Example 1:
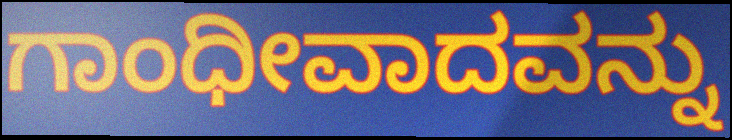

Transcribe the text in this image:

ಗಾಂಧೀವಾದವನ್ನು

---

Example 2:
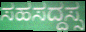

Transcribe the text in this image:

ಸಹಸದ್ದಸ್ಸ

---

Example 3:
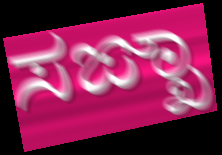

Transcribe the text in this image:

ಸಙ್ಖಾ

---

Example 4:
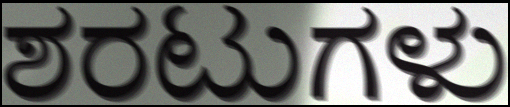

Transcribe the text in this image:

ಶರಟುಗಳು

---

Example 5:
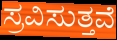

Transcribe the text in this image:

ಸ್ರವಿಸುತ್ತವೆ